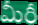
మీరీ